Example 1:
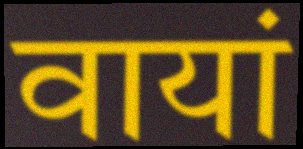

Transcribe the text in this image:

वायां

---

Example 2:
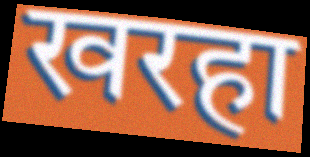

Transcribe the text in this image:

खरहा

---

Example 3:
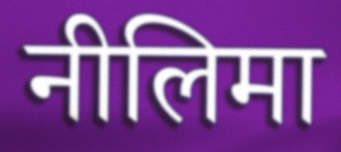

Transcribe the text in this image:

नीलिमा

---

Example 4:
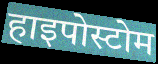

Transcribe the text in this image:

हाइपोस्टोम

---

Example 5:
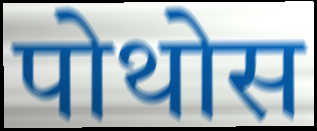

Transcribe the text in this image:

पोथोस